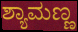
ಶ್ಯಾಮಣ್ಣ